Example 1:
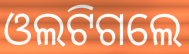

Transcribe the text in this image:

ଓଲଟିଗଲେ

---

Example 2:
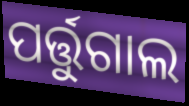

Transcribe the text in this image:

ପର୍ତ୍ତୁଗାଲ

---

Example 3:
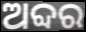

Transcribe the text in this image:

ଅବ୍ଦର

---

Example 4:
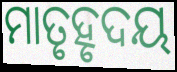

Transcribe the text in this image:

ମାତୃହୃଦୟ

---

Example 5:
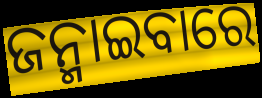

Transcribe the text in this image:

ଜନ୍ମାଇବାରେ